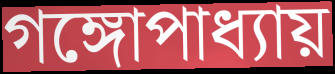
গঙ্গোপাধ্যায়